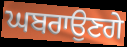
ਘਬਰਾਉਣਗੇ